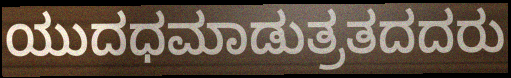
ಯುದಧಮಾಡುತ್ರತದದರು